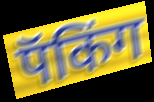
पॅकिंग